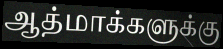
ஆத்மாக்களுக்கு